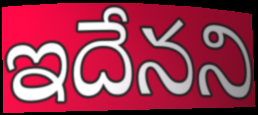
ఇదేనని